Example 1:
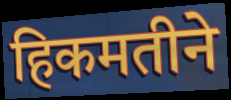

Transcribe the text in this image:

हिकमतीने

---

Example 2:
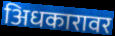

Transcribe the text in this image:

अिधकारावर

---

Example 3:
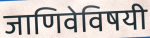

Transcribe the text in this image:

जाणिवेविषयी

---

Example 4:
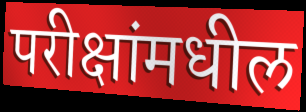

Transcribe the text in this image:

परीक्षांमधील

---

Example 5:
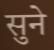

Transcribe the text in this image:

सुने